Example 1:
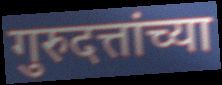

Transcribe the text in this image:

गुरुदत्तांच्या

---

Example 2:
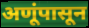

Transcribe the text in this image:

अणूंपासून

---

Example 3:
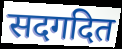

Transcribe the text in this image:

सदगदित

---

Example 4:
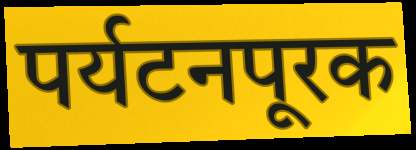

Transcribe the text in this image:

पर्यटनपूरक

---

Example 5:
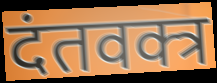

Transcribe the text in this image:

दंतवक्त्र